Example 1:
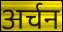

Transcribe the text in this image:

अर्चन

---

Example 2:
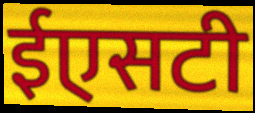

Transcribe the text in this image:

ईएसटी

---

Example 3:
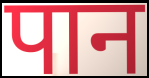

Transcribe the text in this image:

पान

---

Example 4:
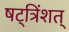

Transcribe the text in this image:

षट्त्रिंशत्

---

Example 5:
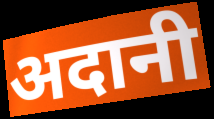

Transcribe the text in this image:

अदानी